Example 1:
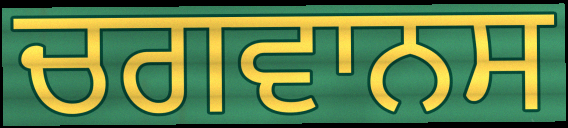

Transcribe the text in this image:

ਚਗਵਾਨਸ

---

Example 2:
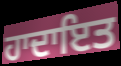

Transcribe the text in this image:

ਹਾਦਾਇਤ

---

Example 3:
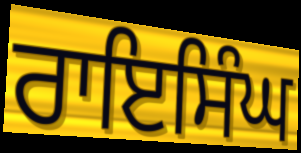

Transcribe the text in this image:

ਰਾਇਸਿੰਘ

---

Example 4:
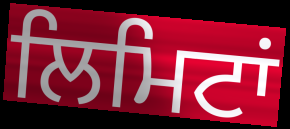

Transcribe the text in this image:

ਲਿਮਿਟਾਂ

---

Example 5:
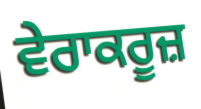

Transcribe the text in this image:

ਵੇਰਾਕਰੂਜ਼